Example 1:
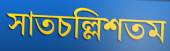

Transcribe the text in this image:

সাতচল্লিশতম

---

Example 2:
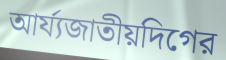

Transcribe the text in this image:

আর্য্যজাতীয়দিগের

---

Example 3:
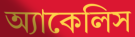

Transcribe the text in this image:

অ্যাকেলিস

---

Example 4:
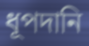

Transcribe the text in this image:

ধূপদানি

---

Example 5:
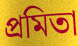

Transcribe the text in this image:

প্রমিতা